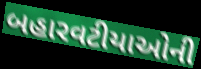
બહારવટીયાઓની